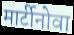
मार्टीनोवा